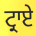
ਟ੍ਰਾਏ